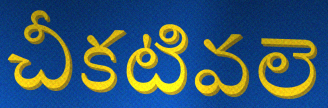
చీకటివలె